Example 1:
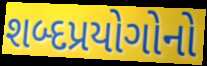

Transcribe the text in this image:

શબ્દપ્રયોગોનો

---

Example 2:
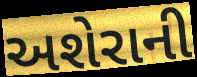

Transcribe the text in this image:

અશેરાની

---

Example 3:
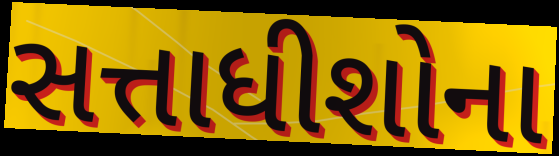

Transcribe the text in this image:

સત્તાધીશોના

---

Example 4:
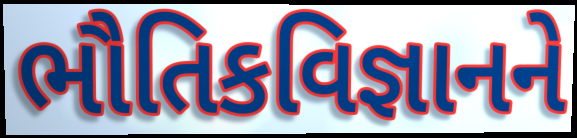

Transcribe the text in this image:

ભૌતિકવિજ્ઞાનને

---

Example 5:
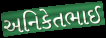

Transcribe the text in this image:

અનિકેતભાઈ